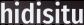
hidisitu